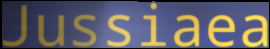
Jussiaea